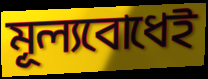
মূল্যবোধেই